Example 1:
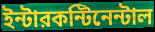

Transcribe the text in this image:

ইন্টারকন্টিনেন্টাল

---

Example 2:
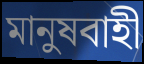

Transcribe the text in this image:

মানুষবাহী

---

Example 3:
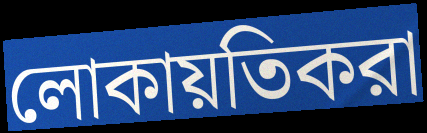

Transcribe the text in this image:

লোকায়তিকরা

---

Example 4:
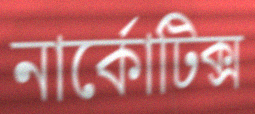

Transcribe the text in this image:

নার্কোটিক্স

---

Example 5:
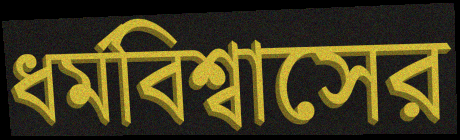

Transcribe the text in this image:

ধর্মবিশ্বাসের